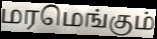
மரமெங்கும்